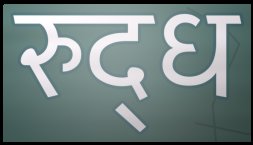
रुद्ध